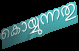
കൊയ്യുന്നതു